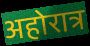
अहोरात्र